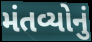
મંતવ્યોનું